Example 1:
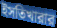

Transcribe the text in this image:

ইসতিখারার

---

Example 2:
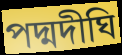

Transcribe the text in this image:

পদ্মদীঘি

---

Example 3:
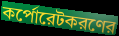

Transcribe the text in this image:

কর্পোরেটকরণের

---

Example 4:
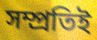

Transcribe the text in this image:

সম্প্রতিই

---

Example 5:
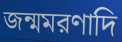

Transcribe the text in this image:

জন্মমরণাদি